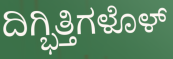
ದಿಗ್ಭಿತ್ತಿಗಳೊಳ್